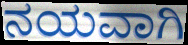
ನಯವಾಗಿ